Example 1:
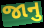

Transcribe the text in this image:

જાનુ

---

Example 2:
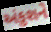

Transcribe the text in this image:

અંકુશને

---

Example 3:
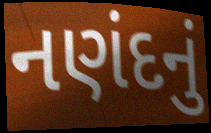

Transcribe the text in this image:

નણંદનું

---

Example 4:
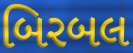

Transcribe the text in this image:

બિરબલ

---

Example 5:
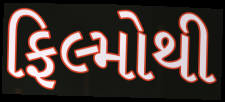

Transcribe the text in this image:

ફિલ્મોથી